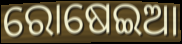
ରୋଷେଇଆ